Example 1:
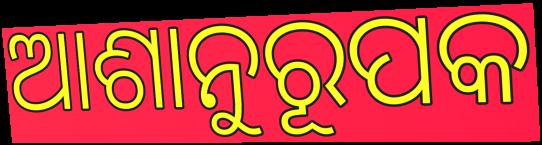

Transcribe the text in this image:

ଆଶାନୁରୂପକ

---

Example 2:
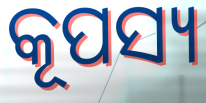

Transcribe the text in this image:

କୂପସ୍ୟ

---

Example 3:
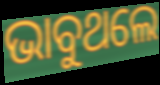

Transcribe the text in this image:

ଭାବୁଥଲେ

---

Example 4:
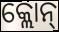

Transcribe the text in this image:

କ୍ଲୋନ୍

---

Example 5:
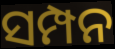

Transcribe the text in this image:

ସମ୍ପନ